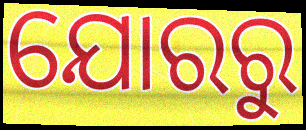
ଯୋରରୁ